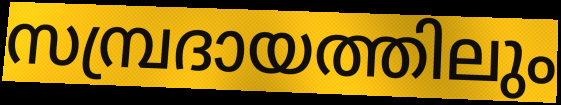
സമ്പ്രദായത്തിലും